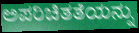
ಅಪರಿಚಿತತೆಯನ್ನು